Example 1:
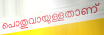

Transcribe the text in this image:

പൊതുവായുള്ളതാണ്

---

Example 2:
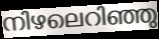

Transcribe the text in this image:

നിഴലെറിഞ്ഞു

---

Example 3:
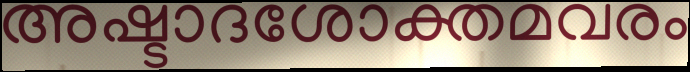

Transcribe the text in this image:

അഷ്ടാദശോക്തമവരം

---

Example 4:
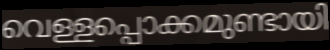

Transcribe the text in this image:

വെള്ളപ്പൊക്കമുണ്ടായി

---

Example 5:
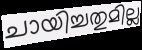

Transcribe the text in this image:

ചായിച്ചതുമില്ല